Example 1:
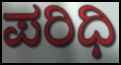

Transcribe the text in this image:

ಪರಿಧಿ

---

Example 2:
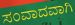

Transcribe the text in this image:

ಸಂವಾದವಾಗಿ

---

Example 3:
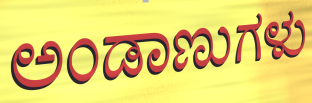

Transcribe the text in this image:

ಅಂಡಾಣುಗಳು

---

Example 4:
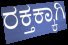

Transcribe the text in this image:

ರಕ್ತಕ್ಕಾಗಿ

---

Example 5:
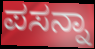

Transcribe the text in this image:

ಪಸನ್ನಾ